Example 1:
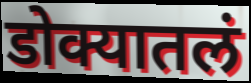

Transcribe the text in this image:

डोक्यातलं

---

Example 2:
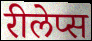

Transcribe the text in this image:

रीलेप्स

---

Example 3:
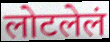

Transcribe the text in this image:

लोटलेलं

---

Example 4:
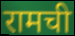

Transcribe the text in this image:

रामची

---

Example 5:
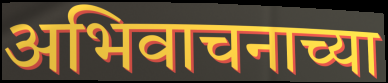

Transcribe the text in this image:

अभिवाचनाच्या